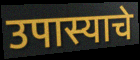
उपास्याचे